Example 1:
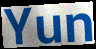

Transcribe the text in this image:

Yun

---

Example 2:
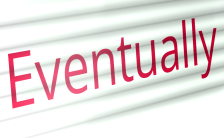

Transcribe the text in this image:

Eventually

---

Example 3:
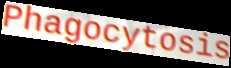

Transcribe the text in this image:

Phagocytosis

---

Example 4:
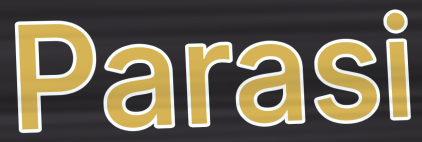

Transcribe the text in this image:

Parasi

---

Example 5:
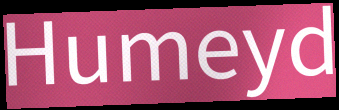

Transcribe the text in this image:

Humeyd